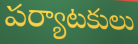
పర్యాటకులు